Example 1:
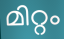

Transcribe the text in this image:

മിറ്റം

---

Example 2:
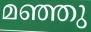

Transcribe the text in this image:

മഞ്ഞു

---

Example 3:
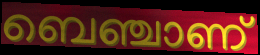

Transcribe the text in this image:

ബെഞ്ചാണ്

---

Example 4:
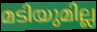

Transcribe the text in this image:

മടിയുമില്ല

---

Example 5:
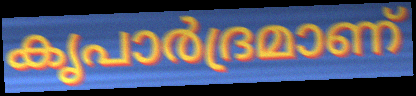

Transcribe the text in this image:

കൃപാർദ്രമാണ്